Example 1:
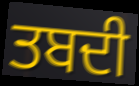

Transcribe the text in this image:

ਤਬਦੀ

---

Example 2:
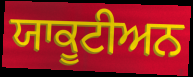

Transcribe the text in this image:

ਯਾਕੂਟੀਅਨ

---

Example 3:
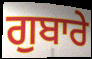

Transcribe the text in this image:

ਗੁਬਾਰੇ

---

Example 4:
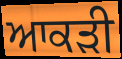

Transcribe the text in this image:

ਆਕੜੀ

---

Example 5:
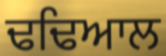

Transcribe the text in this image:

ਢਢਿਆਲ